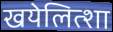
खयेलित्शा